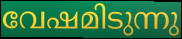
വേഷമിടുന്നു